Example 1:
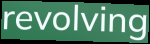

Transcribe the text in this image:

revolving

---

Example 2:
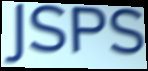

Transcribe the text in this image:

JSPS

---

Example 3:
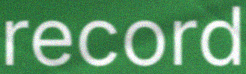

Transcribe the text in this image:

record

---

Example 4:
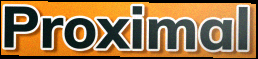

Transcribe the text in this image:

Proximal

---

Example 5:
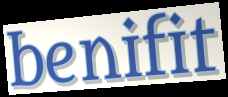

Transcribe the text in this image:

benifit